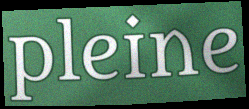
pleine